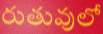
రుతువులో